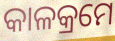
କାଳକ୍ରମେ